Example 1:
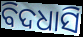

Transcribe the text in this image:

ବିଦଧାସି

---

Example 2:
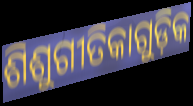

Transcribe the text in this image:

ଶିଶୁଗୀତିକାଗୁଡ଼ିକ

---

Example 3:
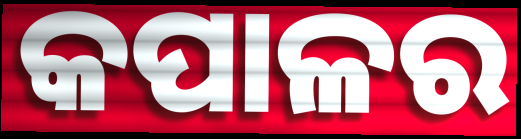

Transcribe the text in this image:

କପାଳର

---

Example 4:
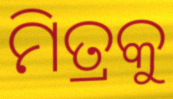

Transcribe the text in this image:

ମିତ୍ରକୁ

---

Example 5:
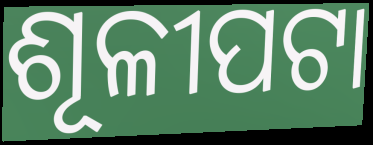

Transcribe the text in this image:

ଶୂଳୀପଟା